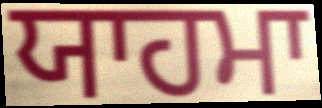
ਯਾਹਮਾ